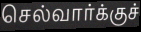
செல்வார்க்குச்